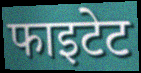
फाइटेट